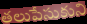
తలుపేసుకుని